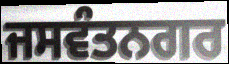
ਜਸਵੰਤਨਗਰ